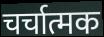
चर्चात्मक